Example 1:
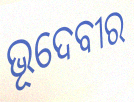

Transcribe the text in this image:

ଭୂଦେବୀର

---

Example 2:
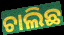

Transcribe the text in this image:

ଚାଲିଛ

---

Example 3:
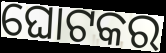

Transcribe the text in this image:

ଘୋଟକର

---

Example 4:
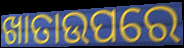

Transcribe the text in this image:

ଖାତାଉପରେ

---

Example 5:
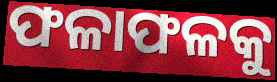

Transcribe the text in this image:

ଫଳାଫଳକୁ